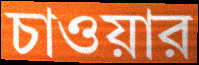
চাওয়ার